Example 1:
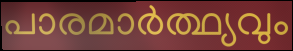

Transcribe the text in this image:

പാരമാർത്ഥ്യവും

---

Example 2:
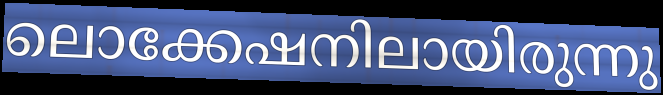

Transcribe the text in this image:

ലൊക്കേഷനിലായിരുന്നു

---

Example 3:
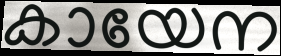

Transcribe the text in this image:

കായേന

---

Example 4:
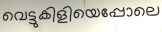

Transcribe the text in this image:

വെട്ടുകിളിയെപ്പോലെ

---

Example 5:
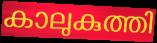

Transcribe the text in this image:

കാലുകുത്തി